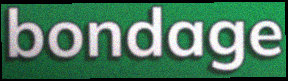
bondage